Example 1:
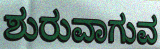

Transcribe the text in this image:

ಶುರುವಾಗುವ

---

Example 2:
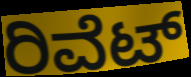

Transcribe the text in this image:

ರಿವೆಟ್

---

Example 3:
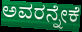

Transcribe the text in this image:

ಅವರನ್ನೇಕೆ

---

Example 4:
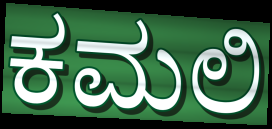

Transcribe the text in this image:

ಕಮಲಿ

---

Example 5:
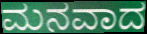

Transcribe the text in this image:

ಮನವಾದ